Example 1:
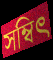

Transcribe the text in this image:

সম্বিৎ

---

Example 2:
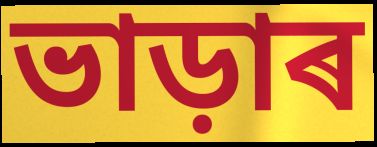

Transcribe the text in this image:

ভাড়াৰ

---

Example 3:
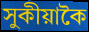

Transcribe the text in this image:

সুকীয়াকৈ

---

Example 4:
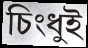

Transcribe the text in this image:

চিংধুই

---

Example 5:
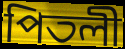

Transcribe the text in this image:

পিতলী